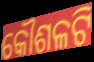
କୌଶଳଟି